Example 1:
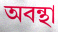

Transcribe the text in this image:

অবন্থা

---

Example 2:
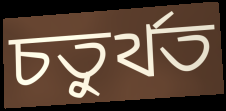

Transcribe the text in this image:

চতুর্থত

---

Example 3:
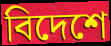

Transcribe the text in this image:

বিদেশে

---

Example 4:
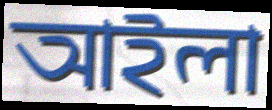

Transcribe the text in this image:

আইলা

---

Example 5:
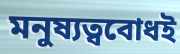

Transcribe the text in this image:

মনুষ্যত্ববোধই